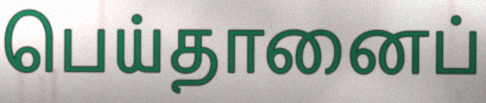
பெய்தானைப்